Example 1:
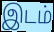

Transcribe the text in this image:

இடம்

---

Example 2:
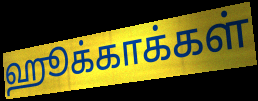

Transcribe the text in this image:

ஹூக்காக்கள்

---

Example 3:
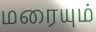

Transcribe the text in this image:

மரையும்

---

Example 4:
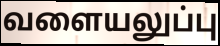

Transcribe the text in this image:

வளையலுப்பு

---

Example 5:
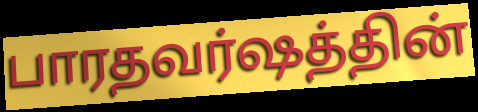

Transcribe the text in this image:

பாரதவர்ஷத்தின்